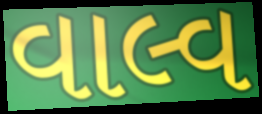
વાલ્વ